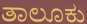
ತಾಲೂಕು